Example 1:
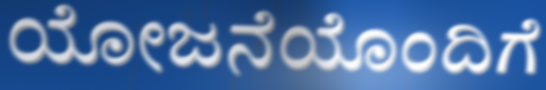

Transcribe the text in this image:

ಯೋಜನೆಯೊಂದಿಗೆ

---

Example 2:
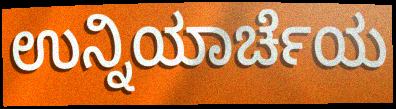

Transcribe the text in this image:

ಉನ್ನಿಯಾರ್ಚೆಯ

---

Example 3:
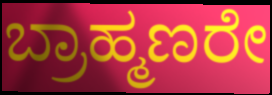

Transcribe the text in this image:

ಬ್ರಾಹ್ಮಣರೇ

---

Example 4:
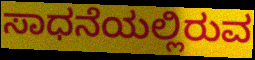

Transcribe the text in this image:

ಸಾಧನೆಯಲ್ಲಿರುವ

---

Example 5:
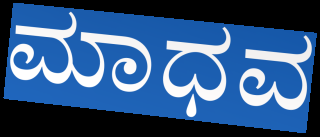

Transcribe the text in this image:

ಮಾಧವ